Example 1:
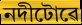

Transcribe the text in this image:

নদীটোৱে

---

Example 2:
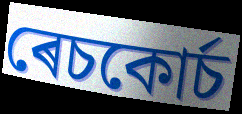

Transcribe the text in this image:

ৰেচকোৰ্চ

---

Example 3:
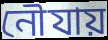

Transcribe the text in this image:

নৌযায়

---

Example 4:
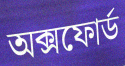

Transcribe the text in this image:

অক্সফোৰ্ড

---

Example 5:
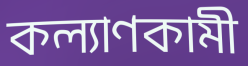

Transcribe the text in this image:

কল্যাণকামী